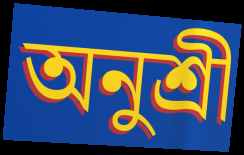
অনুশ্ৰী